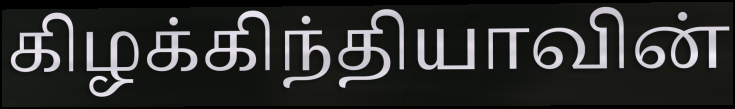
கிழக்கிந்தியாவின்